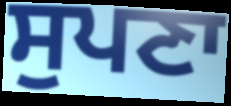
ਸੁਪਣਾ